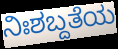
ನಿಃಶಬ್ದತೆಯ